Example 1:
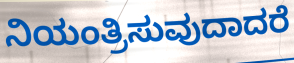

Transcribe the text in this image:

ನಿಯಂತ್ರಿಸುವುದಾದರೆ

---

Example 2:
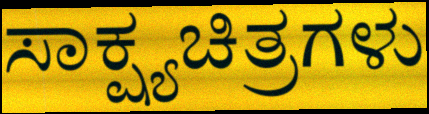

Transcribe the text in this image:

ಸಾಕ್ಷ್ಯಚಿತ್ರಗಳು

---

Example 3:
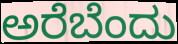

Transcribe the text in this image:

ಅರೆಬೆಂದು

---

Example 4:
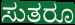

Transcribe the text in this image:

ಸುತರೂ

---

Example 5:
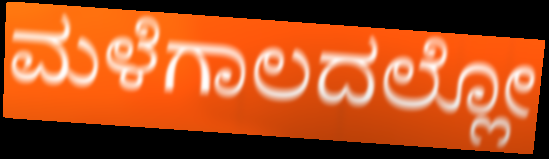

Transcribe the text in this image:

ಮಳೆಗಾಲದಲ್ಲೋ